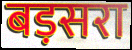
बड़सरा